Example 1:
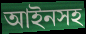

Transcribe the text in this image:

আইনসহ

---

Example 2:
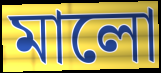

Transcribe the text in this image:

মালো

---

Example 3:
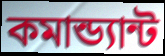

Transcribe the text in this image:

কমান্ড্যান্ট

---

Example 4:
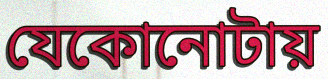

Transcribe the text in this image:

যেকোনোটায়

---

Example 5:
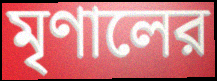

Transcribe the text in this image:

মৃণালের